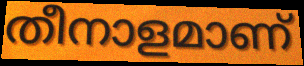
തീനാളമാണ്